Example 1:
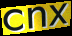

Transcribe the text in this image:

cnx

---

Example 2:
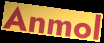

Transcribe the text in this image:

Anmol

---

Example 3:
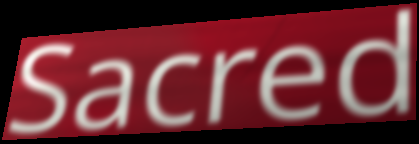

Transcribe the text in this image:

Sacred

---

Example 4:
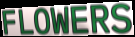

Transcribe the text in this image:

FLOWERS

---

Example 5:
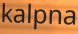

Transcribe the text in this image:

kalpna